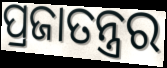
ପ୍ରଜାତନ୍ତ୍ରର